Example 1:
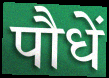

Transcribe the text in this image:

पौधें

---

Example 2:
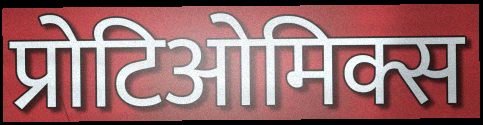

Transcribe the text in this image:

प्रोटिओमिक्स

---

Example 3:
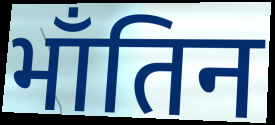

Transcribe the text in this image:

भाँतिन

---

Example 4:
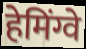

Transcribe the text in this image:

हेमिंग्वे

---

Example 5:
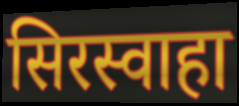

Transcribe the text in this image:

सिरस्वाहा